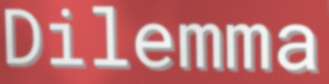
Dilemma